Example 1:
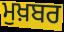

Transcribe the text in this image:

ਮੁਖ਼ਬਰ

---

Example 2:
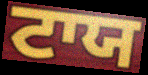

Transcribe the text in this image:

ਟਾਯ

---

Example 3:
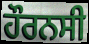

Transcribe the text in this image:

ਹੌਰਨਸੀ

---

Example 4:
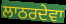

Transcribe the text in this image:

ਲਾਠਰਦੇਵਾ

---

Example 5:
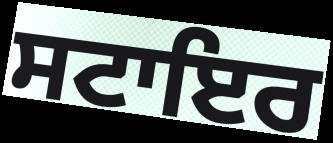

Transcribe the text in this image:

ਸਟਾਇਰ